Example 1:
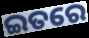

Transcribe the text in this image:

ଇତରେ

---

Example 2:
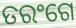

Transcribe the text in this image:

ତରଂଗେ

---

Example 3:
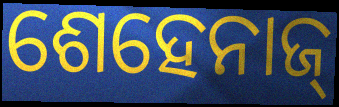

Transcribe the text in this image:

ଶେହେନାଜ୍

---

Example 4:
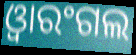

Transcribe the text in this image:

ଓ୍ୱାରଂଗଲ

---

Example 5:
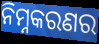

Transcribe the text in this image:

ନିମ୍ନକରଣର